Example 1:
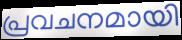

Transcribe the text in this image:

പ്രവചനമായി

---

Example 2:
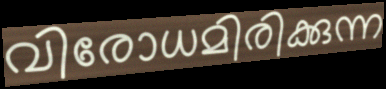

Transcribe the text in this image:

വിരോധമിരിക്കുന്ന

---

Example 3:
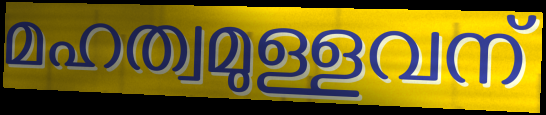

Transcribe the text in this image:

മഹത്വമുള്ളവന്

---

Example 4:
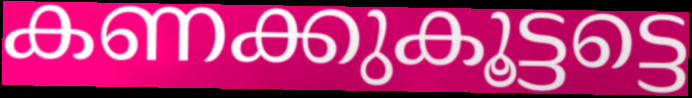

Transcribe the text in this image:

കണക്കുകൂട്ടട്ടെ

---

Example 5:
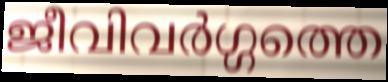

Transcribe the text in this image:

ജീവിവർഗ്ഗത്തെ